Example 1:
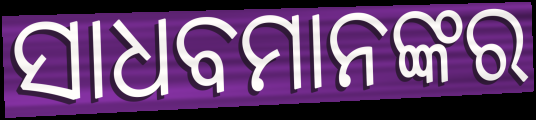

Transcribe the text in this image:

ସାଧବମାନଙ୍କର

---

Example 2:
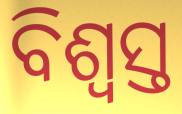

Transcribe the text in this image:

ବିଶ୍ୱସ୍ତ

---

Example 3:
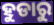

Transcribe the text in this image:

ହୁଡାରୁ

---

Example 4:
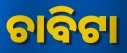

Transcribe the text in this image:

ଚାବିଟା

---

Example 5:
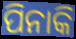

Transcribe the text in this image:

ପିନାକି